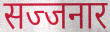
सज्जनार